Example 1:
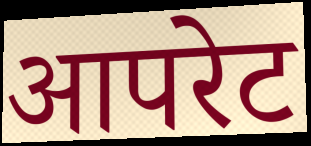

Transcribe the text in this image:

आपरेट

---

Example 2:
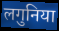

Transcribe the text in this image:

लगुनिया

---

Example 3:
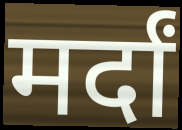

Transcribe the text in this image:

मर्दां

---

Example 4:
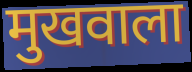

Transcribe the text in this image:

मुखवाला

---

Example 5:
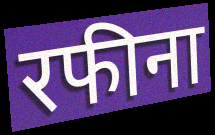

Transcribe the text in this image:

रफीना